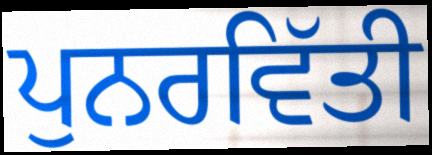
ਪੁਨਰਵਿੱਤੀ